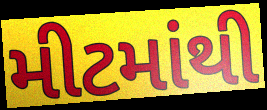
મીટમાંથી